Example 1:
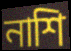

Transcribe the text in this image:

নাশি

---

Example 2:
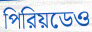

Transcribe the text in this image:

পিরিয়ডেও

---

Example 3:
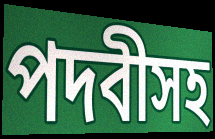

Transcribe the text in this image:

পদবীসহ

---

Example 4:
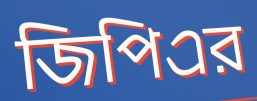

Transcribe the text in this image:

জিপিএর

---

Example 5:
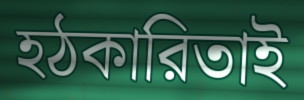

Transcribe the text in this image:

হঠকারিতাই